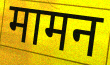
मामन